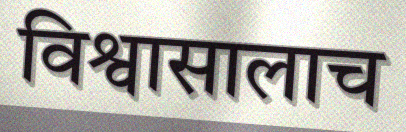
विश्वासालाच